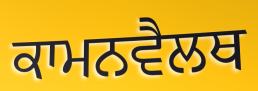
ਕਾਮਨਵੈਲਥ